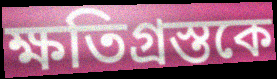
ক্ষতিগ্রস্তকে